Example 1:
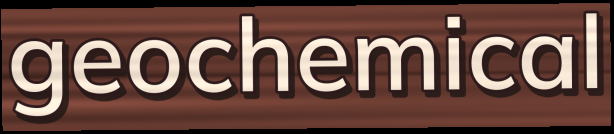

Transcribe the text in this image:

geochemical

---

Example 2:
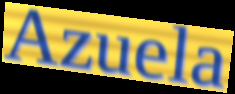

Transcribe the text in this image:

Azuela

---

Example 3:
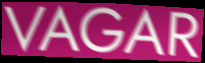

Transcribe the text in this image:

VAGAR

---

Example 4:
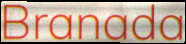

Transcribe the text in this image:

Branada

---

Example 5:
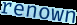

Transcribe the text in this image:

renown